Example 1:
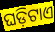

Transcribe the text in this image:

ଘଡ଼ିଟାଏ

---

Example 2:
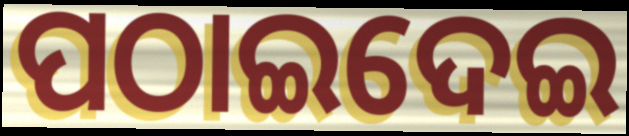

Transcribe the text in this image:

ପଠାଇଦେଇ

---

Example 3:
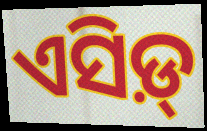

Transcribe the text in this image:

ଏସିଡ଼୍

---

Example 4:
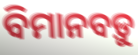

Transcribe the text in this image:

ବିମାନବଡ଼ୁ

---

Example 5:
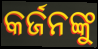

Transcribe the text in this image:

କର୍ଜନଙ୍କୁ